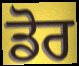
ਡੋਰ